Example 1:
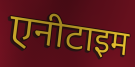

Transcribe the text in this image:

एनीटाइम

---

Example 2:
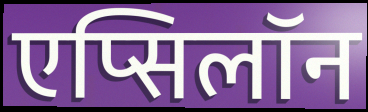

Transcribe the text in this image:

एप्सिलॉन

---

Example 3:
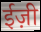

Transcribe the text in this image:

ईज़ी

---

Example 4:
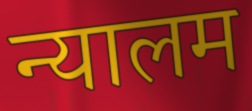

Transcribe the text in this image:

न्यालम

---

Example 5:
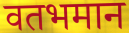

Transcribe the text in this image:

वतभमान